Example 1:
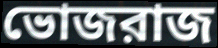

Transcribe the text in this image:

ভোজরাজ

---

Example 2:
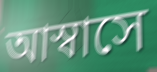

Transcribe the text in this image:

আস্বাসে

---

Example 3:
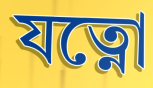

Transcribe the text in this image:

যত্নো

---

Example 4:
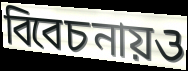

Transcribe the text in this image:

বিবেচনায়ও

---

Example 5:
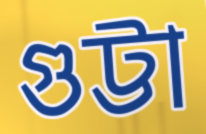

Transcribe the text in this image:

গুট্টা